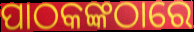
ପାଠକଙ୍କଠାରେ